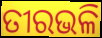
ତୀରଭଳି